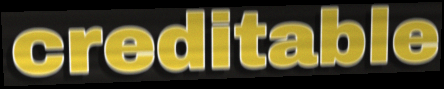
creditable